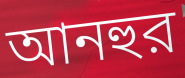
আনহুর